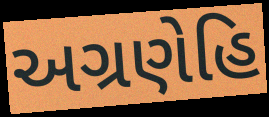
અગ્રણેહિ